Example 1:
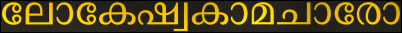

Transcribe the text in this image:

ലോകേഷ്വകാമചാരോ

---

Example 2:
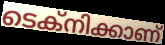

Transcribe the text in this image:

ടെക്നിക്കാണ്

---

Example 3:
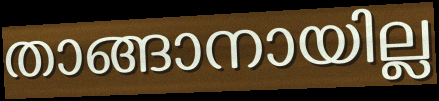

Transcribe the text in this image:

താങ്ങാനായില്ല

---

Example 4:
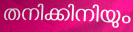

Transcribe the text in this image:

തനിക്കിനിയും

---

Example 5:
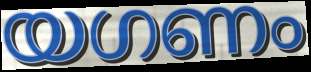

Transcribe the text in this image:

യഗണം